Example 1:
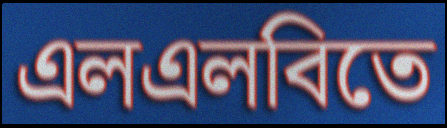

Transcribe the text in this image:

এলএলবিতে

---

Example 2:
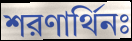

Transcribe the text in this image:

শরণার্থিনঃ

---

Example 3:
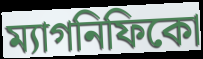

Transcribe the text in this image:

ম্যাগনিফিকো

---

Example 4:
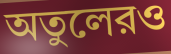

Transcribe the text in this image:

অতুলেরও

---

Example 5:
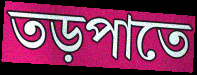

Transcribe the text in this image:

তড়পাতে